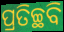
ପ୍ରତିଚ୍ଛବି